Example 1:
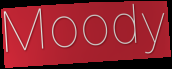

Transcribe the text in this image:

Moody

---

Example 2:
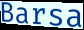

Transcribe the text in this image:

Barsa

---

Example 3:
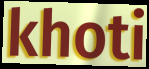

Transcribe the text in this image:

khoti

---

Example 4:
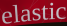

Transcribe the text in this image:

elastic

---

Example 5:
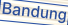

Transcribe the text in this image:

Bandung